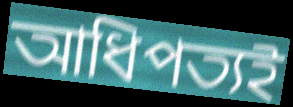
আধিপত্যই